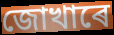
জোখাৰে